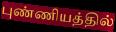
புண்ணியத்தில்